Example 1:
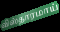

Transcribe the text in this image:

விஸ்தாரமாய்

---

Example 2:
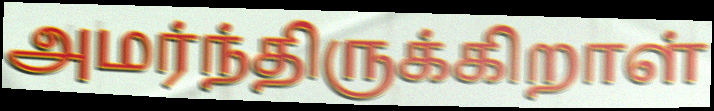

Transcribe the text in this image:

அமர்ந்திருக்கிறாள்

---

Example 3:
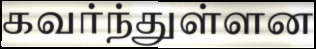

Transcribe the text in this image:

கவர்ந்துள்ளன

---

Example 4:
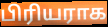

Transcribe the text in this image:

பிரியராக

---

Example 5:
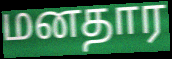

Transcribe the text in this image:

மனதார